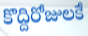
కొద్దిరోజులకే